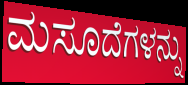
ಮಸೂದೆಗಳನ್ನು